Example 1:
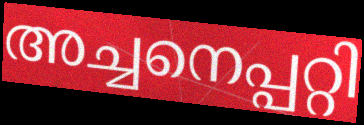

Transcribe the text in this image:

അച്ചനെപ്പറ്റി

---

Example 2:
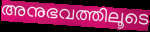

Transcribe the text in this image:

അനുഭവത്തിലൂടെ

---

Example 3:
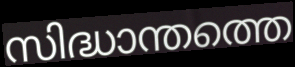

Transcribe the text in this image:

സിദ്ധാന്തത്തെ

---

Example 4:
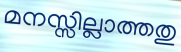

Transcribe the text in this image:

മനസ്സില്ലാത്തതു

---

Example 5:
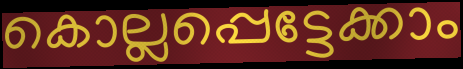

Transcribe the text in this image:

കൊല്ലപ്പെട്ടേക്കാം